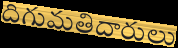
దిగుమతిదారులు